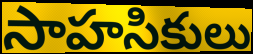
సాహసికులు